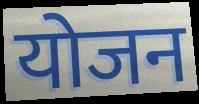
योजन